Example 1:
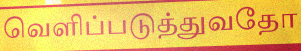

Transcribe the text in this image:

வெளிப்படுத்துவதோ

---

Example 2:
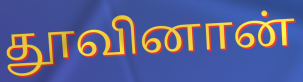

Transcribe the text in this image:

தூவினான்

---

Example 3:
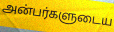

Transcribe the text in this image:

அன்பர்களுடைய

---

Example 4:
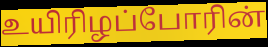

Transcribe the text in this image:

உயிரிழப்போரின்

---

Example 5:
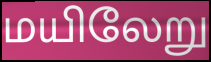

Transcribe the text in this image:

மயிலேறு